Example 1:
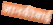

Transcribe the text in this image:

जानकीबाई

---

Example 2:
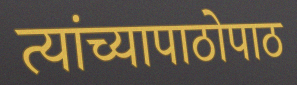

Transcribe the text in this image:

त्यांच्यापाठोपाठ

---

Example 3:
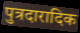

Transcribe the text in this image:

पुत्रदारादिक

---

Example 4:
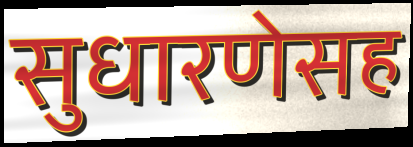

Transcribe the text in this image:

सुधारणेसह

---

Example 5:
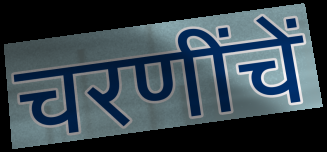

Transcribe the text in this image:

चरणींचें